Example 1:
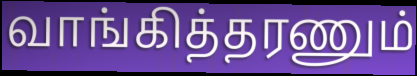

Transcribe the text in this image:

வாங்கித்தரணும்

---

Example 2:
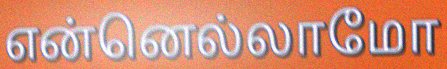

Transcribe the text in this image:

என்னெல்லாமோ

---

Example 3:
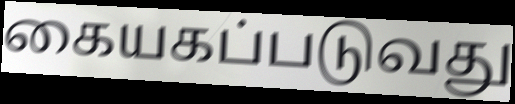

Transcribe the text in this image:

கையகப்படுவது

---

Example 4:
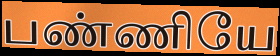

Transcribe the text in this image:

பண்ணியே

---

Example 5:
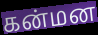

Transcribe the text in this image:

கன்மன